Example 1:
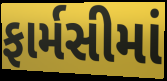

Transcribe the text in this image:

ફાર્મસીમાં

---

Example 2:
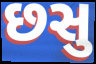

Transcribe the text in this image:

છસુ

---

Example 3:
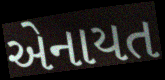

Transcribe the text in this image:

એનાયત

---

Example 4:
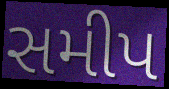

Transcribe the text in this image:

સમીપ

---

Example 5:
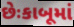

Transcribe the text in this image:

છેઃકાબૂમાં